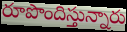
రూపొందిస్తున్నారు